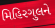
મિહિરગુલને